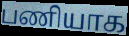
பணியாக